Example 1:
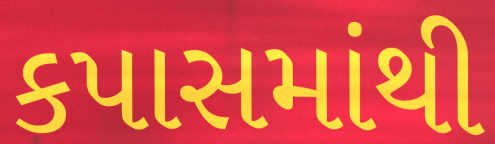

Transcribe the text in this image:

કપાસમાંથી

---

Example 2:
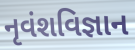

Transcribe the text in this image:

નૃવંશવિજ્ઞાન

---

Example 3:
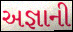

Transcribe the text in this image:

અજ્ઞાની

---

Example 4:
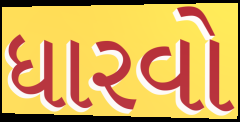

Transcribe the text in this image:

ધારવો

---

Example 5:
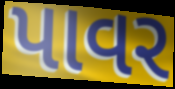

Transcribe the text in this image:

પાવર